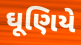
ઘૂણિયે